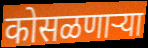
कोसळणार्‍या